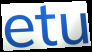
etu